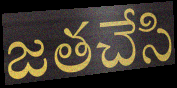
జతచేసి